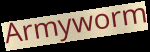
Armyworm